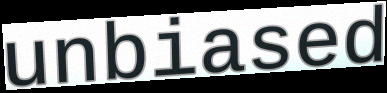
unbiased